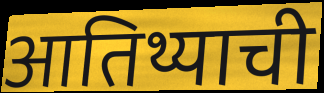
आतिथ्याची